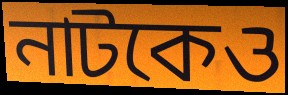
নাটকেও